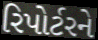
રિપોર્ટરને